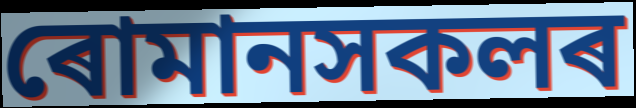
ৰোমানসকলৰ